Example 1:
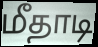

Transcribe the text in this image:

மீதாடி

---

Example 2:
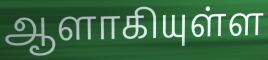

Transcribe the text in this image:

ஆளாகியுள்ள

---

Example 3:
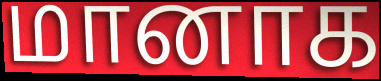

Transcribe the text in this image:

மானாக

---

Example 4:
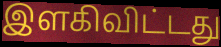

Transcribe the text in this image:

இளகிவிட்டது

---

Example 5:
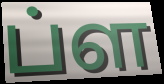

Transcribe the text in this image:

ப்ள